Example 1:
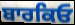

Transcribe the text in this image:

ਬਾਰਕਿਓ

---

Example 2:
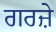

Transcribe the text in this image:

ਗਰਜ਼ੇ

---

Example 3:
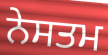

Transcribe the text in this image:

ਨੇਸਤਮ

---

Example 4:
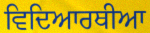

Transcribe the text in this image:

ਵਿਦਿਆਰਥੀਆ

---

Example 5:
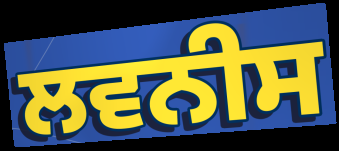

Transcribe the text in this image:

ਲਵਨੀਸ